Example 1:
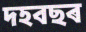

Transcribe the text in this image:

দহবছৰ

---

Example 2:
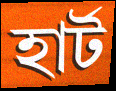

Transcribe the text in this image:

হাৰ্ট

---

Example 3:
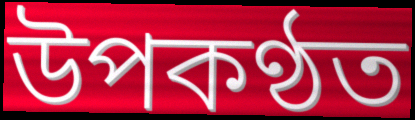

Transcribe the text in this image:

উপকণ্ঠত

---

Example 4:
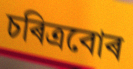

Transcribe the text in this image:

চৰিত্ৰবোৰ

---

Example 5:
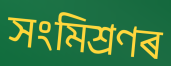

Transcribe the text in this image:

সংমিশ্ৰণৰ